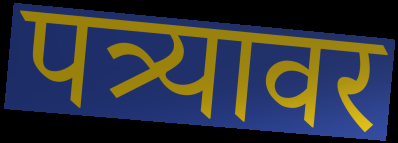
पत्र्यावर